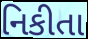
નિકીતા